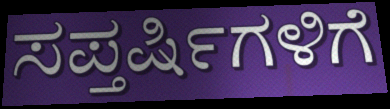
ಸಪ್ತರ್ಷಿಗಳಿಗೆ